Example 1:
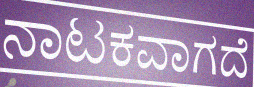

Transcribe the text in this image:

ನಾಟಕವಾಗದೆ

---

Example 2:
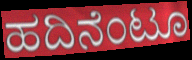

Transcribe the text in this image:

ಹದಿನೆಂಟೂ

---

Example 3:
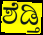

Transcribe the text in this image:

ಶೆಡ್ತಿ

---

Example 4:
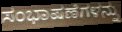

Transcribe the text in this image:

ಸಂಭಾಷಣೆಗಳನ್ನು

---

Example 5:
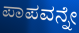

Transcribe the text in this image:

ಪಾಪವನ್ನೇ